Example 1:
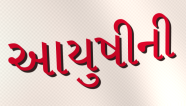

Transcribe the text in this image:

આયુષીની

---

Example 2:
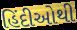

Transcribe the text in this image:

હિંદીઓથી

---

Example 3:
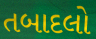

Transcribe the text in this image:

તબાદલો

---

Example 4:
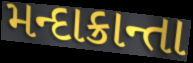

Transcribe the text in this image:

મન્દાક્રાન્તા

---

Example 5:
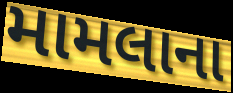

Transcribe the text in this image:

મામલાના